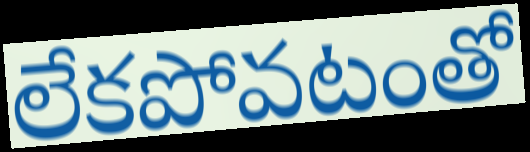
లేకపోవటంతో